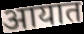
आयात